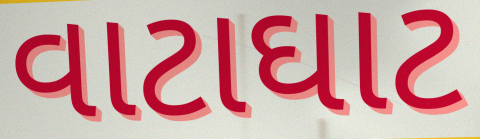
વાટાઘાટ